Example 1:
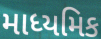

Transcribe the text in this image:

માધ્યમિક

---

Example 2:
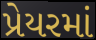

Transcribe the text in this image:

પ્રેયરમાં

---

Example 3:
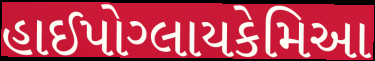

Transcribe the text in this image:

હાઈપોગ્લાયકેમિઆ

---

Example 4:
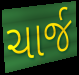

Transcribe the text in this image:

ચાર્જ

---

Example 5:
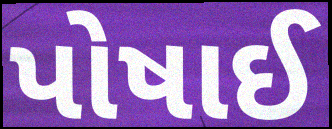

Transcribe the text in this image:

પોષાઈ